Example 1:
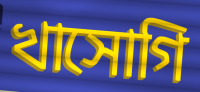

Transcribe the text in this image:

খাসোগি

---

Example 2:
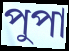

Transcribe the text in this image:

পুপা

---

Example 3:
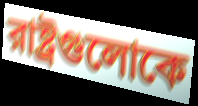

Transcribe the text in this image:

রাষ্ট্রগুলোকে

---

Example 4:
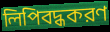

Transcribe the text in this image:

লিপিবদ্ধকরণ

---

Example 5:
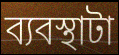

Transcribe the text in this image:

ব্যবস্থাটা